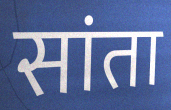
सांता